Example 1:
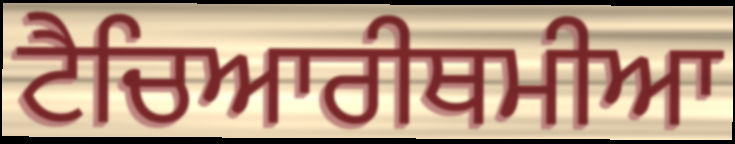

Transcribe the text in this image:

ਟੈਚਿਆਰੀਥਮੀਆ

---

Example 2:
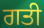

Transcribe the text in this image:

ਗਤੀ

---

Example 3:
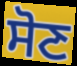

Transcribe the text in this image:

ਸੋਣ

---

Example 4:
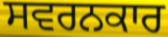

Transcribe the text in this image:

ਸਵਰਨਕਾਰ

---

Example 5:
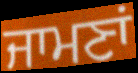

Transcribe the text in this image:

ਜਾਮਣਾਂ